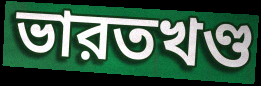
ভারতখণ্ড